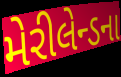
મેરીલેન્ડના